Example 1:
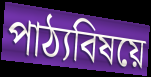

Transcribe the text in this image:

পাঠ্যবিষয়ে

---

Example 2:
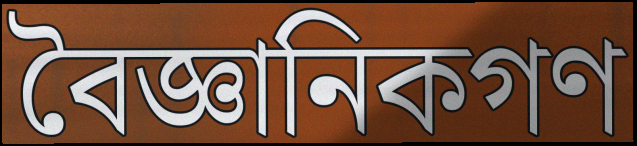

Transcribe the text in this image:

বৈজ্ঞানিকগণ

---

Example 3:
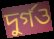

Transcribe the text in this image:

দুর্গও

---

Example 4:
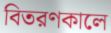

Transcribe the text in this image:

বিতরণকালে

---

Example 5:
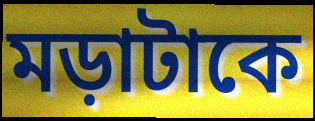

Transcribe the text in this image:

মড়াটাকে